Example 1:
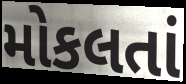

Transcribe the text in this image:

મોકલતાં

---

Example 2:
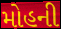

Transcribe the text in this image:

મોહની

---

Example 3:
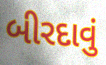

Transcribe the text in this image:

બીરદાવું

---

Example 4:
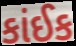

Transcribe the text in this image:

કાંઈક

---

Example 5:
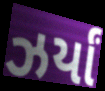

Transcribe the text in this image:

ઝર્યાં